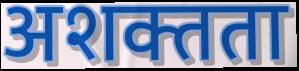
अशक्‍तता